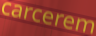
carcerem